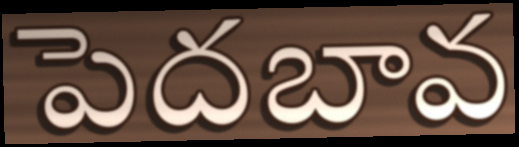
పెదబావ